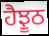
ਹੈਝੂਠ